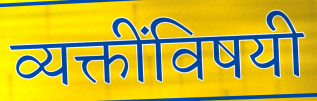
व्यक्तींविषयी